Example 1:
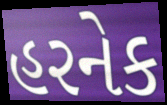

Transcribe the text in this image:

હરનેક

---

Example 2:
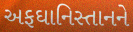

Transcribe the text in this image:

અફઘાનિસ્તાનને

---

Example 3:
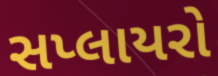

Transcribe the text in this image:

સપ્લાયરો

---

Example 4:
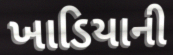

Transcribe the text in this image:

ખાડિયાની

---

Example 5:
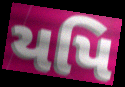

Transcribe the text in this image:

યપિ